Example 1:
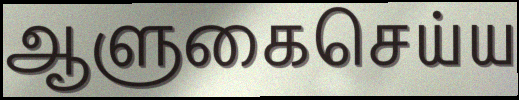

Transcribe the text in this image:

ஆளுகைசெய்ய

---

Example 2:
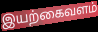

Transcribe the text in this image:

இயற்கைவளம்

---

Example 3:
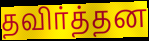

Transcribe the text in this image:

தவிர்த்தன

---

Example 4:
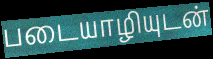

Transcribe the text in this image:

படையாழியுடன்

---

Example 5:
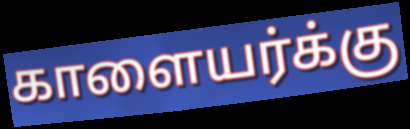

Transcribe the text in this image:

காளையர்க்கு